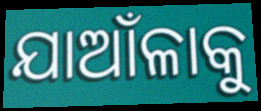
ଯାଆଁଳାକୁ